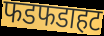
फडफडाहट